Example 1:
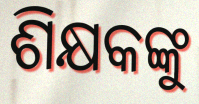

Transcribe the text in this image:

ଶିକ୍ଷକଙ୍କୁ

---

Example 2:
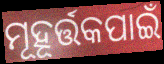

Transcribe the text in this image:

ମୂହୂର୍ତ୍ତକପାଇଁ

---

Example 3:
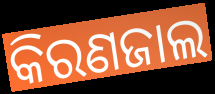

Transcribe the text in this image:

କିରଣଜାଲ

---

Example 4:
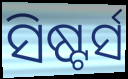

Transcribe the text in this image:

ସିଷ୍ଟର୍ସ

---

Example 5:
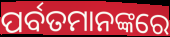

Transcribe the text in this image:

ପର୍ବତମାନଙ୍କରେ